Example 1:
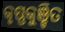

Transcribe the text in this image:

କୃଷ୍ଣକୁଞ୍ଚିତ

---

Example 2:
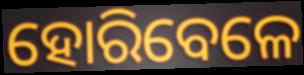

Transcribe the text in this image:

ହୋରିବେଳେ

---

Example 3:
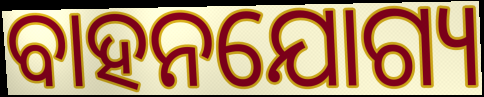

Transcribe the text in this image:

ବାହନଯୋଗ୍ୟ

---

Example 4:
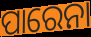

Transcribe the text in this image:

ପାରେନା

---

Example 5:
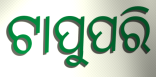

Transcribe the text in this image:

ଟାପୁପରି